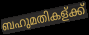
ബഹുമതികള്ക്ക്